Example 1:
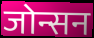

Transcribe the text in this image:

जोन्सन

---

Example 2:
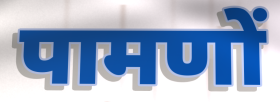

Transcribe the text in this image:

पामणों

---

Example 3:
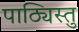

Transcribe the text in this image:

पाठ्यिस्तु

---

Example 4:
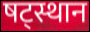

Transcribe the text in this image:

षट्स्थान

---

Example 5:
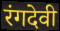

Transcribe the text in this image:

रंगदेवी